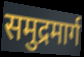
समुद्रमार्ग